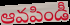
ఆవపిండీ